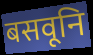
बसवूनि